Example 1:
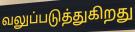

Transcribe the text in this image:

வலுப்படுத்துகிறது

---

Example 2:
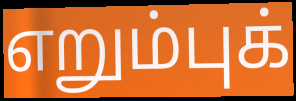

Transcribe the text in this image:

எறும்புக்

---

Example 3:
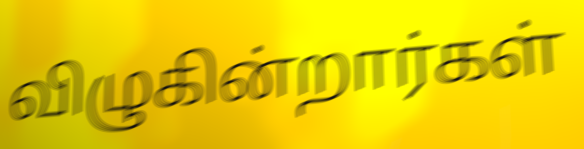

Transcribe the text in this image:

விழுகின்றார்கள்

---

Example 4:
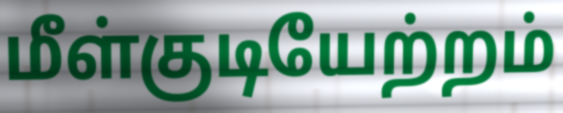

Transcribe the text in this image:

மீள்குடியேற்றம்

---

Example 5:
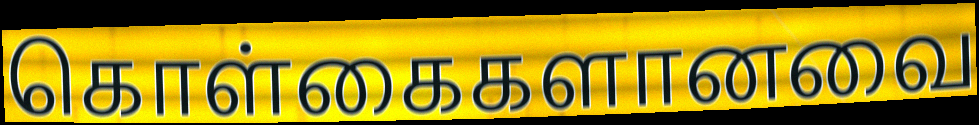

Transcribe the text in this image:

கொள்கைகளானவை